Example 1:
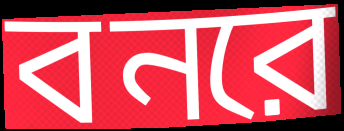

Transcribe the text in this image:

বনরে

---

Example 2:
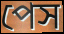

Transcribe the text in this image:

পেস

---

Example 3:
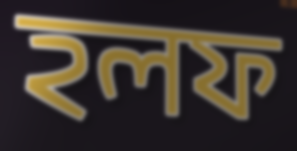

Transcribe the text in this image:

হলফ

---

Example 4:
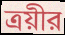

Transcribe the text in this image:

ত্রয়ীর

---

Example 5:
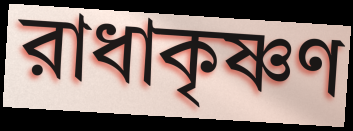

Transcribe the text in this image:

রাধাকৃষ্ণণ